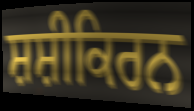
ਸ਼ਸ਼ੀਕਿਰਨ